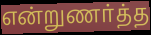
என்றுணர்த்த